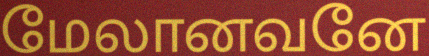
மேலானவனே